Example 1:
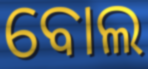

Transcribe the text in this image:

ବୋଲ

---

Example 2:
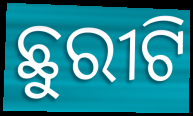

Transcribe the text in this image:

ଛୁରୀଟି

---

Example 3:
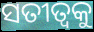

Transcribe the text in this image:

ସତୀତ୍ୱକୁ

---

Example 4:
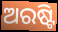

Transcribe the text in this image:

ଅରଷ୍ଟି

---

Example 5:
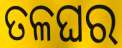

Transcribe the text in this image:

ତଳଘର